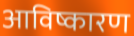
आविष्कारण